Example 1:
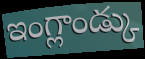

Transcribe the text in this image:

ఇంగ్లాండ్కు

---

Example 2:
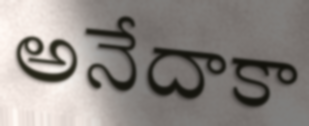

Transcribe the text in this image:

అనేదాకా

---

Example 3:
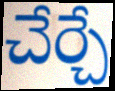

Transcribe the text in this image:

చేర్చే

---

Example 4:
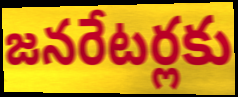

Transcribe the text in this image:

జనరేటర్లకు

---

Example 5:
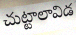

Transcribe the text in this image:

చుట్టాలావిడ